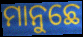
ମାନୁଛେ